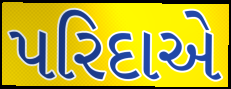
પરિદાએ